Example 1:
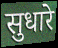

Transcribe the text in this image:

सुधारे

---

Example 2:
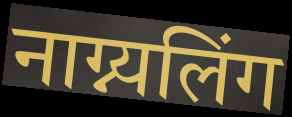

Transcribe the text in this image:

नाग्न्यलिंग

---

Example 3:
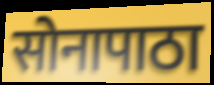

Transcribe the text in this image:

सोनापाठा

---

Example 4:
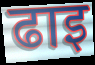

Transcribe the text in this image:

ढाइ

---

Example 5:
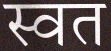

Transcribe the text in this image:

स्वत